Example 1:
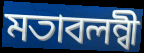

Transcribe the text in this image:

মতাবলন্বী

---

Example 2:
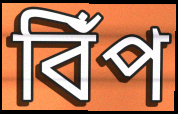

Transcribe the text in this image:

বিঁপ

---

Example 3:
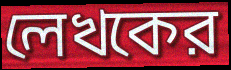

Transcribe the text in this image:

লেখকের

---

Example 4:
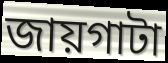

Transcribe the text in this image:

জায়গাটা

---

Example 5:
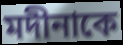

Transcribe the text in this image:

মদীনাকে